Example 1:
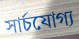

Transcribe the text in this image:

সার্চযোগ্য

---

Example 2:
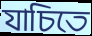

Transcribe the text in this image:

যাচিতে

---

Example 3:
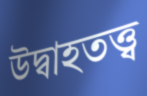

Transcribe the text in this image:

উদ্বাহতত্ত্ব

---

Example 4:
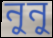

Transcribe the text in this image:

নুনু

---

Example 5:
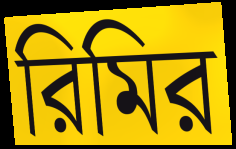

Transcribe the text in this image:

রিমির